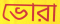
ভোরা